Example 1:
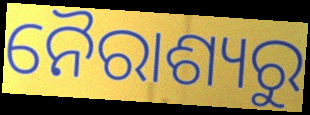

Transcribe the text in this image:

ନୈରାଶ୍ୟରୁ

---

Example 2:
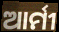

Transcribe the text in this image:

ଆର୍ମୀ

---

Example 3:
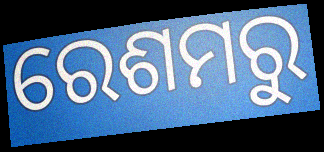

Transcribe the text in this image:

ରେଶମରୁ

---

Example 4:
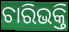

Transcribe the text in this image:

ଚାରିଭକ୍ତି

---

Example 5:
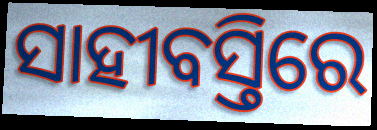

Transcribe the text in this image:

ସାହୀବସ୍ତିରେ